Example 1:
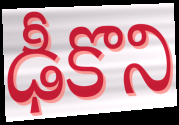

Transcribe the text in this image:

ఢీకొని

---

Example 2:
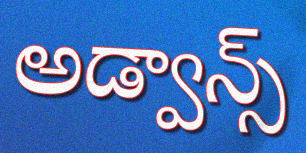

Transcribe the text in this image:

అడ్వాన్స్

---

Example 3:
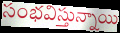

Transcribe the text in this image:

సంభవిస్తున్నాయి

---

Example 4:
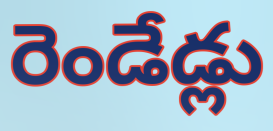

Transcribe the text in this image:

రెండేడ్లు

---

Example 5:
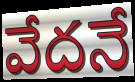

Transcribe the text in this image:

వేదనే